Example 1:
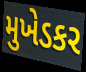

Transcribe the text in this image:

મુખેડકર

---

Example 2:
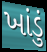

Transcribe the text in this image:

ખાંડું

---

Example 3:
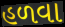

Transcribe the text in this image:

હળવા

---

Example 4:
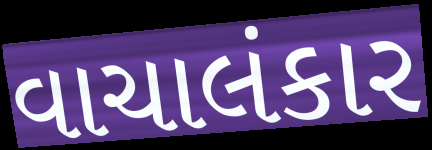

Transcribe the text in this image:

વાચાલંકાર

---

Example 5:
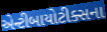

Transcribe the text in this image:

એન્ટીબાયોટીક્સના